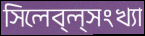
সিলেব্‌ল্‌সংখ্যা